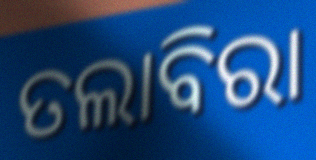
ତଲାବିରା